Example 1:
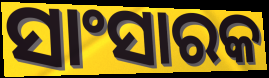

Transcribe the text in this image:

ସାଂସାରକ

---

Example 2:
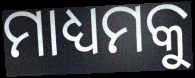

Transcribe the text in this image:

ମାଧ୍ୟମକୁ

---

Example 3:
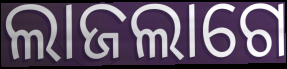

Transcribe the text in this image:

ଲାଜଲାଗେ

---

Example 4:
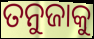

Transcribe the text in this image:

ତନୁଜାକୁ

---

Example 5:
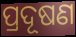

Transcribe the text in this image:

ପ୍ରଦୂଷଣ